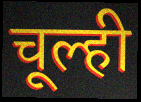
चूल्ही